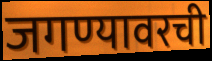
जगण्यावरची